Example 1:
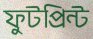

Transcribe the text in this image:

ফুটপ্রিন্ট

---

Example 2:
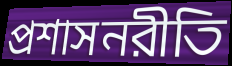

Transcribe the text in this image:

প্রশাসনরীতি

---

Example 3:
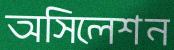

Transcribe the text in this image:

অসিলেশন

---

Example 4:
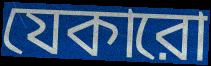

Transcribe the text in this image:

যেকারো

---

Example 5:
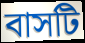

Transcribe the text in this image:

বাসটি